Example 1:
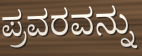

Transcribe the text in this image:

ಪ್ರವರವನ್ನು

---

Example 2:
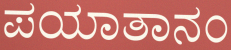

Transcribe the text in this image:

ಪಯಾತಾನಂ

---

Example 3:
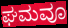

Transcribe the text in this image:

ಘಮವೂ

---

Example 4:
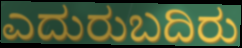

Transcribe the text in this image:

ಎದುರುಬದಿರು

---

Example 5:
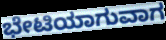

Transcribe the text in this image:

ಭೇಟಿಯಾಗುವಾಗ